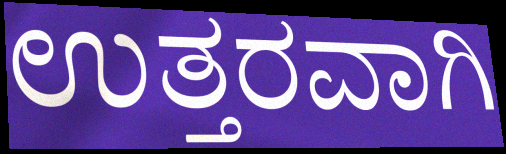
ಉತ್ತರವಾಗಿ